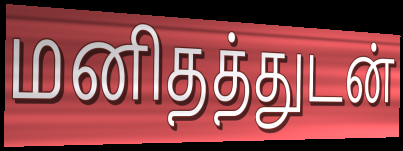
மனிதத்துடன்